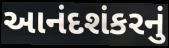
આનંદશંકરનું